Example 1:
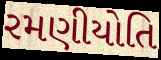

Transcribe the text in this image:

રમણીયોતિ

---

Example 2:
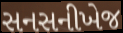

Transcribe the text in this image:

સનસનીખેજ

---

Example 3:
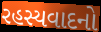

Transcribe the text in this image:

રહસ્યવાદનો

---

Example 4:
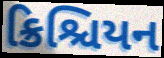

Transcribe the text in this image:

ક્રિશ્ચિયન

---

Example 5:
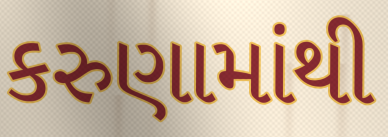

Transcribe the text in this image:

કરુણામાંથી